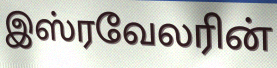
இஸ்ரவேலரின்